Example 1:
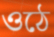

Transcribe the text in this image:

ওঠে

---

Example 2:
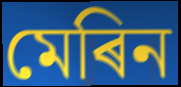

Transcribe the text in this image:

মেৰিন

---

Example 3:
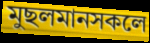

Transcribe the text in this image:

মুছলমানসকলে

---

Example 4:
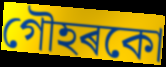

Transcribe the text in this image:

গৌহৰকো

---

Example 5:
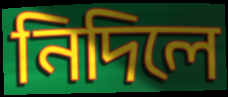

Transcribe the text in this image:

নিদিলে